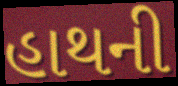
હાથની